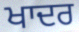
ਖਾਦਰ